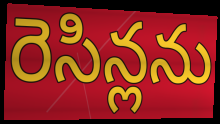
రెసిన్లను